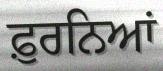
ਫ਼ੁਰਨਿਆਂ